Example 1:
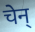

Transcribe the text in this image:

चेन्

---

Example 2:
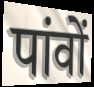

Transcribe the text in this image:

पांवों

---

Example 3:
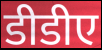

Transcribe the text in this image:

डीडीए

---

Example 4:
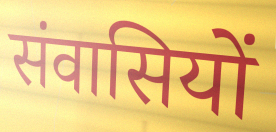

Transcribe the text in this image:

संवासियों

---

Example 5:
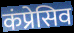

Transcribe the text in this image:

कंप्रेसिव